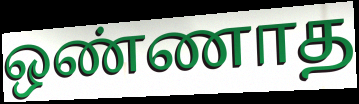
ஒண்ணாத